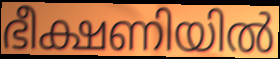
ഭീക്ഷണിയിൽ